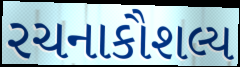
રચનાકૌશલ્ય